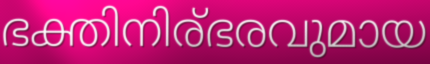
ഭക്തിനിര്ഭരവുമായ